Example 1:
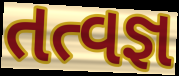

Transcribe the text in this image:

તત્વજ્ઞ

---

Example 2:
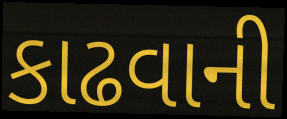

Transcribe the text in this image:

કાઢવાની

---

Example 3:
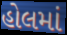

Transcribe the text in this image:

હોલમાં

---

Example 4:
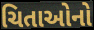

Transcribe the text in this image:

ચિતાઓનો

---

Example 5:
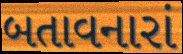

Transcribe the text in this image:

બતાવનારાં